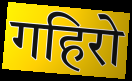
गहिरो